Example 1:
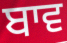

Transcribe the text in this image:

ਬਾਵ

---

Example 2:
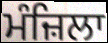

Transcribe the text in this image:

ਮੰਜ਼ਿਲਾ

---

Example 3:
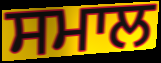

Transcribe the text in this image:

ਸਮਾਲ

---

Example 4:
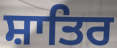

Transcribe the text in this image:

ਸ਼ਾਤਿਰ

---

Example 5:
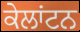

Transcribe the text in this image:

ਕੇਲਾਂਟਨ